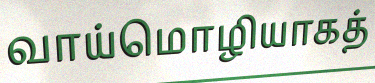
வாய்மொழியாகத்